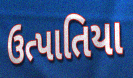
ઉત્પાતિયા